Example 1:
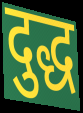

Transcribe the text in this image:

दुद्ध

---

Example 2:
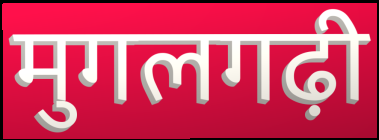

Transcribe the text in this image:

मुगलगढ़ी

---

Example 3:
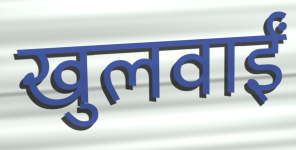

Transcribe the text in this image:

खुलवाईं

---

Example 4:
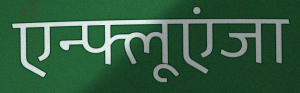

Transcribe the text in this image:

एन्फ्लूएंजा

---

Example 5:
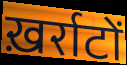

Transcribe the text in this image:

ख़र्राटों